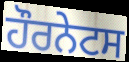
ਹੌਰਨੇਟਸ